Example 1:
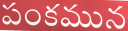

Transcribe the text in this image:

పంకమున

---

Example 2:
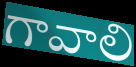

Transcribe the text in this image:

గావాలి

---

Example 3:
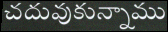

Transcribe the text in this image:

చదువుకున్నాము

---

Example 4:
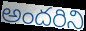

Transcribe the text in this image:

అందరిని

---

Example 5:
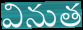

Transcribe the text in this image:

వినుత